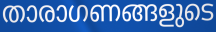
താരാഗണങ്ങളുടെ